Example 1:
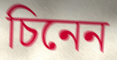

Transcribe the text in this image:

চিনেন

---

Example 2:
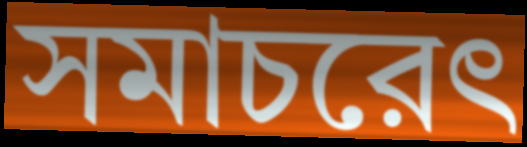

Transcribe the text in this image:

সমাচরেৎ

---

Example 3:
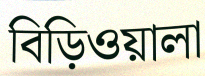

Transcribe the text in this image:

বিড়িওয়ালা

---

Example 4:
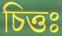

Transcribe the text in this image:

চিত্তঃ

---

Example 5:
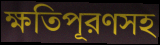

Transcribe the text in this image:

ক্ষতিপূরণসহ